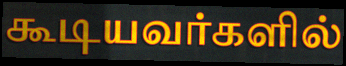
கூடியவர்களில்